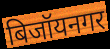
बिजॉयनगर